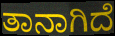
ತಾನಾಗಿದೆ